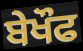
ਬੇਖੌਫ